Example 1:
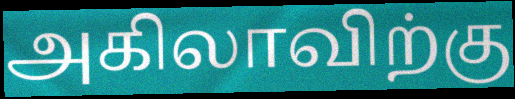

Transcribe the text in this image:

அகிலாவிற்கு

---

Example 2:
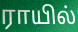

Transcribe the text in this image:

ராயில்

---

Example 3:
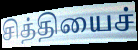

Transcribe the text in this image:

சித்தியைச்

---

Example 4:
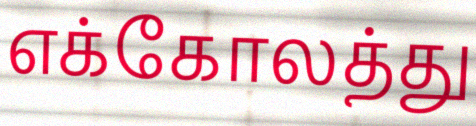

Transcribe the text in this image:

எக்கோலத்து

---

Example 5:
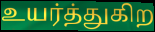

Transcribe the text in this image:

உயர்த்துகிற